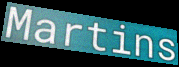
Martins